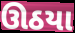
ઊઠયા